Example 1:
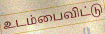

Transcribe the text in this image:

உடம்பைவிட்டு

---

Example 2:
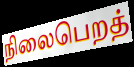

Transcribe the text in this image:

நிலைபெறத்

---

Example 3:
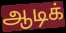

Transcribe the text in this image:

ஆடிக்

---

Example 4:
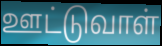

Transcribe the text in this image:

ஊட்டுவாள்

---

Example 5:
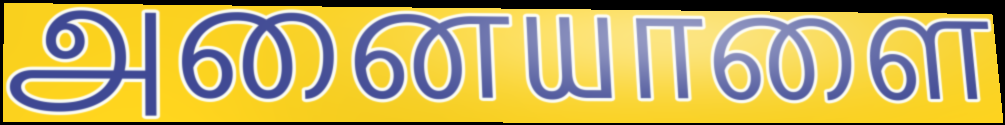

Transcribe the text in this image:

அனையாளை